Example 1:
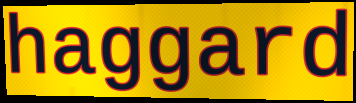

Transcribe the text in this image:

haggard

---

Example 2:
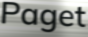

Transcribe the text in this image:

Paget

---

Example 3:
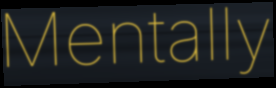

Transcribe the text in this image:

Mentally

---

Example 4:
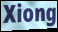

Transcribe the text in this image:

Xiong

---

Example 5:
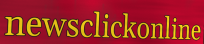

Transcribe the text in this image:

newsclickonline